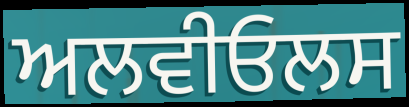
ਅਲਵੀਓਲਸ